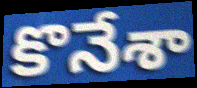
కొనేశా